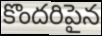
కొందరిపైన